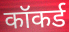
कॉकर्ड